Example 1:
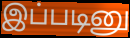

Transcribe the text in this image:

இப்படினு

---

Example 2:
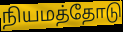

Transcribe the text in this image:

நியமத்தோடு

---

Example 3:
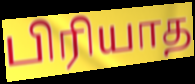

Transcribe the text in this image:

பிரியாத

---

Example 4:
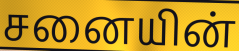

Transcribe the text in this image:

சனையின்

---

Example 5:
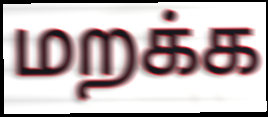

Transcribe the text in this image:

மறக்க